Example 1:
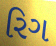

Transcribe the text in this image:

રિગ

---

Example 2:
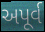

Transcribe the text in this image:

અપૂર્વ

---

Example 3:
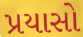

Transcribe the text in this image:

પ્રયાસો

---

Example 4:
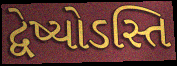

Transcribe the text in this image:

દ્વેષ્યોઽસ્તિ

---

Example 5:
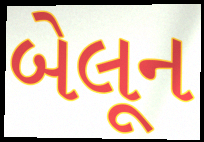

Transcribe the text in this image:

બેલૂન